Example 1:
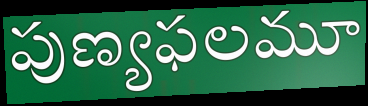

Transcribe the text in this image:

పుణ్యఫలమూ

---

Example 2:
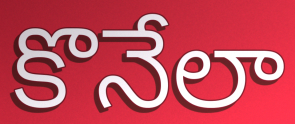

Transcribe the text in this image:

కొనేలా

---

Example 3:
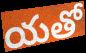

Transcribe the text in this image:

యతో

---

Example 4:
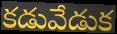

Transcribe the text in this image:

కడువేడుక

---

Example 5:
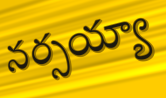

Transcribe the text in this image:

నర్సయ్యా